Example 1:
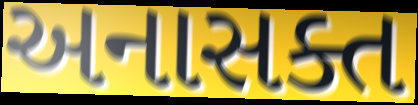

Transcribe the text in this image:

અનાસક્ત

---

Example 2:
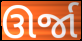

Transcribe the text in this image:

ઊર્જા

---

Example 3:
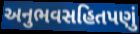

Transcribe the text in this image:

અનુભવસહિતપણું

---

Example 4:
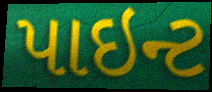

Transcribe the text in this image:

પાઇન્ટ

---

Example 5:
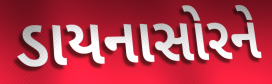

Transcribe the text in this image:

ડાયનાસોરને